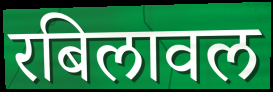
रबिलावल